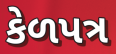
કેળપત્ર